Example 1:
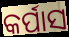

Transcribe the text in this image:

କର୍ପାସ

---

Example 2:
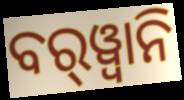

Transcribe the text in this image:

ବର୍‍ୱ୍ୱାନି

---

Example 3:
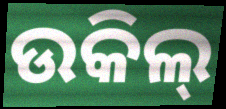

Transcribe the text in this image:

ଉକିଲ୍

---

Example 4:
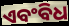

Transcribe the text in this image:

ଏବଂବିଧ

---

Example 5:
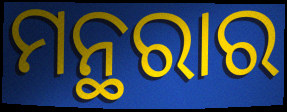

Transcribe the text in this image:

ମନ୍ଥରାର